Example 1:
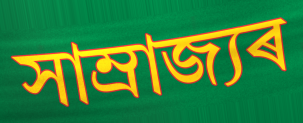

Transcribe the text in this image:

সাম্ৰাজ্যৰ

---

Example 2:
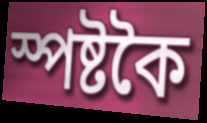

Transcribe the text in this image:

স্পষ্টকৈ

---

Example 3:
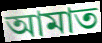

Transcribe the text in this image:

আমাত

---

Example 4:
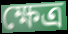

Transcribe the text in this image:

ক্ষেত্ৰ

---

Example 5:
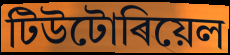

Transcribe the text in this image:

টিউটোৰিয়েল